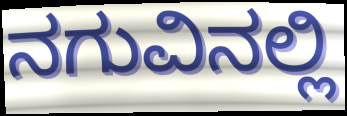
ನಗುವಿನಲ್ಲಿ